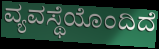
ವ್ಯವಸ್ಥೆಯೊಂದಿದೆ